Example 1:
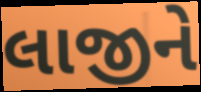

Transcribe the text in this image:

લાજીને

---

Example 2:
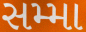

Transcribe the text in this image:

સમ્મા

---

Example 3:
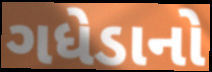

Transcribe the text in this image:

ગધેડાનો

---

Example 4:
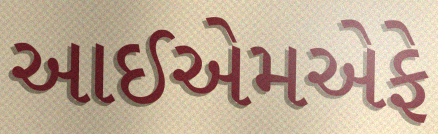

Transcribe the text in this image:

આઈએમએફે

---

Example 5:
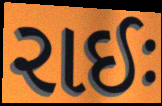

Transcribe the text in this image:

રાઈઃ